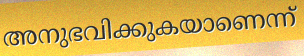
അനുഭവിക്കുകയാണെന്ന്